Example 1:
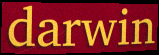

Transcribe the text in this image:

darwin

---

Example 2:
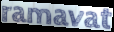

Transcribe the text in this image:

ramavat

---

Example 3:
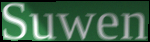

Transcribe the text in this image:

Suwen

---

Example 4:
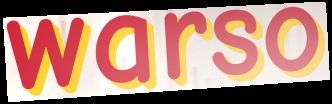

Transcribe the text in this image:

warso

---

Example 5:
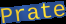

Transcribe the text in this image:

Prate